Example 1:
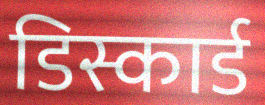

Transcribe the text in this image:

डिस्कार्ड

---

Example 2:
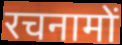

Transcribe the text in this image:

रचनामों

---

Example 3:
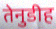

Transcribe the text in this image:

तेनुडीह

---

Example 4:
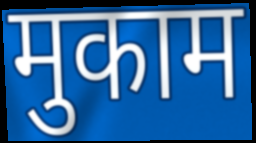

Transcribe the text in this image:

मुकाम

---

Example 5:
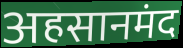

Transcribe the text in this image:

अहसानमंद